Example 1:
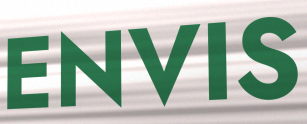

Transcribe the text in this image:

ENVIS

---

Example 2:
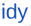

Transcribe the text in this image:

idy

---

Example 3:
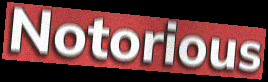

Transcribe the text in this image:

Notorious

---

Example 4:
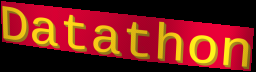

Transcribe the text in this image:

Datathon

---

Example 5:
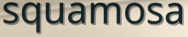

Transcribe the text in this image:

squamosa